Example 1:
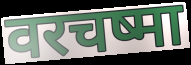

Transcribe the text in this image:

वरचष्मा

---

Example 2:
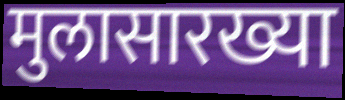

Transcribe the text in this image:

मुलासारख्या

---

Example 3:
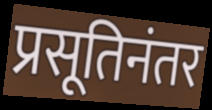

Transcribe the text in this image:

प्रसूतिनंतर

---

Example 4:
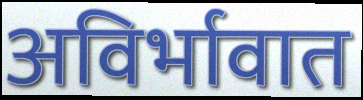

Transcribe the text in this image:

अविर्भावात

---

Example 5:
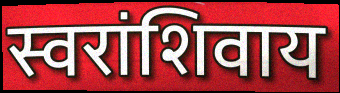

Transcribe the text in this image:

स्वरांशिवाय